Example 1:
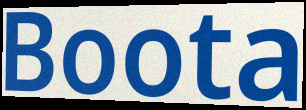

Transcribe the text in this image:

Boota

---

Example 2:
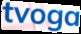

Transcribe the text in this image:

tvoga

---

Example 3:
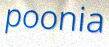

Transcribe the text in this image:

poonia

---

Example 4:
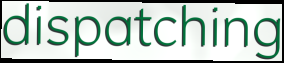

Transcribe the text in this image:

dispatching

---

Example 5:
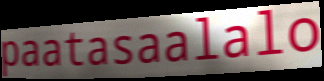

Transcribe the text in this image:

paatasaalalo